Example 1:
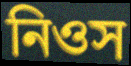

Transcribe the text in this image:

নিওস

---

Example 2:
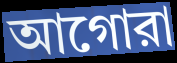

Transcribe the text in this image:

আগোরা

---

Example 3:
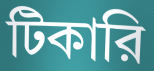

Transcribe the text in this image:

টিকারি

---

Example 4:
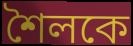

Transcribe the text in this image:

শৈলকে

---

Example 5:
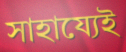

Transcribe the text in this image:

সাহায্যেই